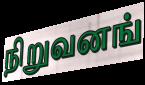
நிறுவனங்